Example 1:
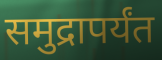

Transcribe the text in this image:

समुद्रापर्यंत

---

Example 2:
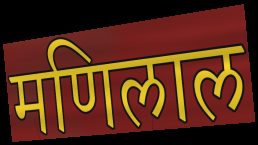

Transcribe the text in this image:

मणिलाल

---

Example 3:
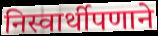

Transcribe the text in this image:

निस्वार्थीपणाने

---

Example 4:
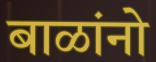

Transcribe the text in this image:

बाळांनो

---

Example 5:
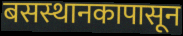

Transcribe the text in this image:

बसस्थानकापासून